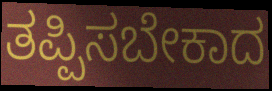
ತಪ್ಪಿಸಬೇಕಾದ